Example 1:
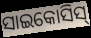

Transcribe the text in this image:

ସାଇକୋସିସ୍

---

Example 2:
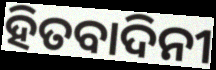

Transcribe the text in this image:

ହିତବାଦିନୀ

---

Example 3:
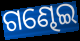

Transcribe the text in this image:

ଗଣ୍ଢେଇ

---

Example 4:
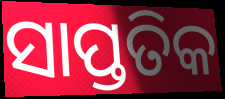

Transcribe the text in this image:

ସାପ୍ତତିକ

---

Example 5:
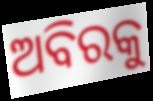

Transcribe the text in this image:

ଅବିରକୁ